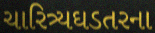
ચારિત્ર્યઘડતરના